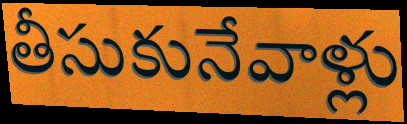
తీసుకునేవాళ్లు